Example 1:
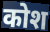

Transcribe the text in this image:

कोश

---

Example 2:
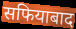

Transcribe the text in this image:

सफियाबाद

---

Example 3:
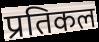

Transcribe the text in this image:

प्रतिकल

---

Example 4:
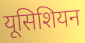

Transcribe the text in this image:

यूसिशियन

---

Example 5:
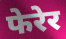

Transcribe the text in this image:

फेरेर